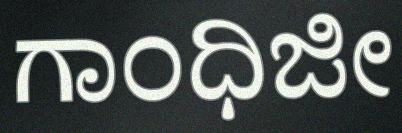
ಗಾಂಧಿಜೀ